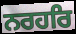
ਨਰਹਰਿ